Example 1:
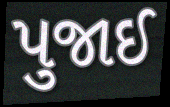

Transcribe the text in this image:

પુજાઈ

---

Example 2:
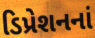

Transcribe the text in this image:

ડિપ્રેશનનાં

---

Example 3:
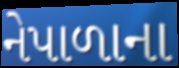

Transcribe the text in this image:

નેપાળાના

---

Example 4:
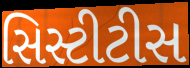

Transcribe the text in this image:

સિસ્ટીટીસ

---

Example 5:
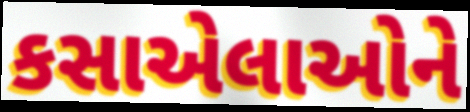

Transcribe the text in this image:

કસાએલાઓને